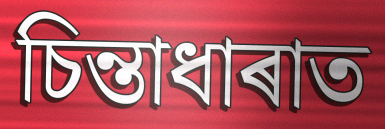
চিন্তাধাৰাত